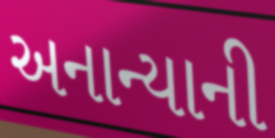
અનાન્યાની